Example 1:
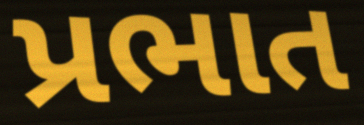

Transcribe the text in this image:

પ્રભાત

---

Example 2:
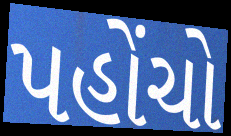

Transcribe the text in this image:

પહોંચો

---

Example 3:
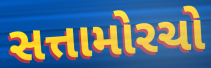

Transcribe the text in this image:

સત્તામોરચો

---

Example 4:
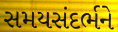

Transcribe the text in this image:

સમયસંદર્ભને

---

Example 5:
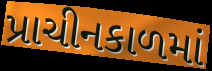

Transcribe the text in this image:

પ્રાચીનકાળમાં